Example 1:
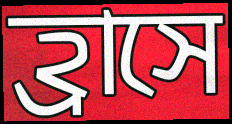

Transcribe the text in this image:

হ্রাসে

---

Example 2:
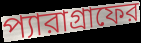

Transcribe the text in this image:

প্যারাগ্রাফের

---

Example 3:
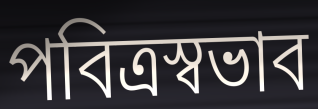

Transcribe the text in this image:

পবিত্রস্বভাব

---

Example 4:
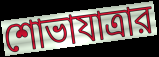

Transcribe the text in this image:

শোভাযাত্রার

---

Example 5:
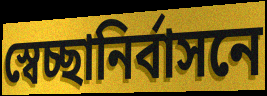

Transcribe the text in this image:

স্বেচ্ছানির্বাসনে